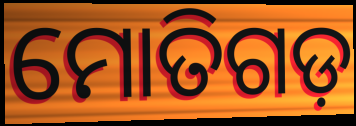
ମୋତିଗଡ଼